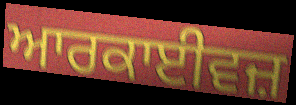
ਆਰਕਾਈਵਜ਼